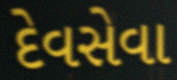
દેવસેવા